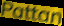
Pattan